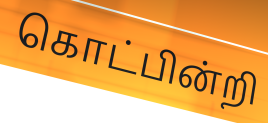
கொட்பின்றி